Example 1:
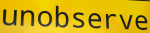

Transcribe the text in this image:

unobserve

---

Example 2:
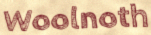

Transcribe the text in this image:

Woolnoth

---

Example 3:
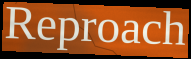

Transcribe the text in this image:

Reproach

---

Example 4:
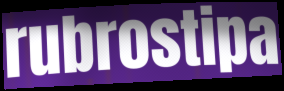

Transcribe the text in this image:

rubrostipa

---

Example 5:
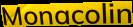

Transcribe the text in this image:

Monacolin